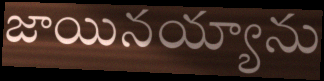
జాయినయ్యాను